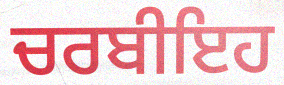
ਚਰਬੀਇਹ